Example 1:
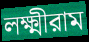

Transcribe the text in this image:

লক্ষ্মীরাম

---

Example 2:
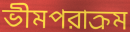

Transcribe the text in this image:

ভীমপরাক্রম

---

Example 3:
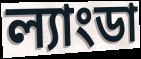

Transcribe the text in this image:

ল্যাংডা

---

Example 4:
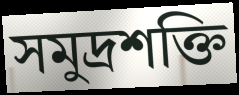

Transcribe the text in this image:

সমুদ্রশক্তি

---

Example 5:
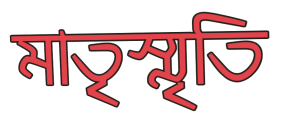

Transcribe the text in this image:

মাতৃস্মৃতি